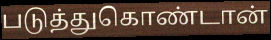
படுத்துகொண்டான்